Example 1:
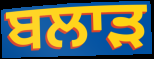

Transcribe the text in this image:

ਬਲਾੜ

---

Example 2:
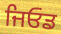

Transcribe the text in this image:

ਜਿਓਡ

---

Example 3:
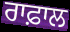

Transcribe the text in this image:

ਰਾਫ਼ਾਲ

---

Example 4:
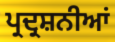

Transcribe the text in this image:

ਪ੍ਰਦ੍ਰਸ਼ਨੀਆਂ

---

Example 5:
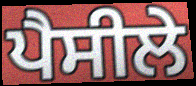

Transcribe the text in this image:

ਪੈਸੀਲੇ